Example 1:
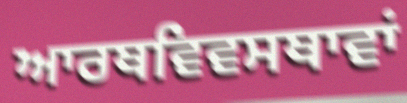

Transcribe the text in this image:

ਆਰਥਵਿਵਸਥਾਵਾਂ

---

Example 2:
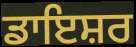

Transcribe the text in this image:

ਡਾਇਸ਼ਰ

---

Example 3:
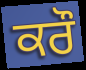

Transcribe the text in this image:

ਕਰੌ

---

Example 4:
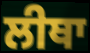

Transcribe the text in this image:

ਲੀਥਾ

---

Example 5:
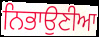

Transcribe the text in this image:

ਨਿਭਾਉਣੀਆ